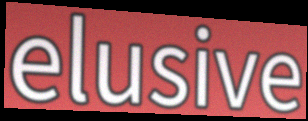
elusive